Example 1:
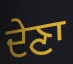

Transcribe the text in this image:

ਦੇਣਾ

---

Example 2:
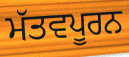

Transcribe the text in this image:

ਮੱਤਵਪੂਰਨ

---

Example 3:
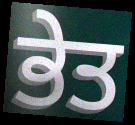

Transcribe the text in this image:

ਭੇਤ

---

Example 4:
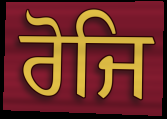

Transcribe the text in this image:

ਰੋਜਿ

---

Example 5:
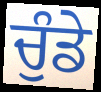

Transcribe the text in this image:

ਚੁੰਡੇ